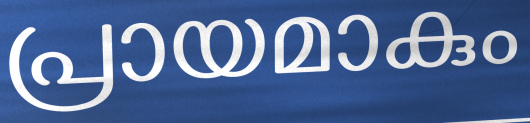
പ്രായമാകും